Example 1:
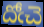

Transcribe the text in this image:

దోఁచె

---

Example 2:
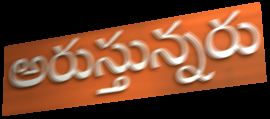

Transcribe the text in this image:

అరుస్తున్నరు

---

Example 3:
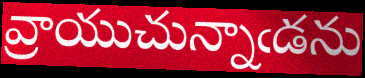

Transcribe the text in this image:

వ్రాయుచున్నాఁడను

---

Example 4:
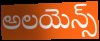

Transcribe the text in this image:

అలయెన్స్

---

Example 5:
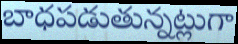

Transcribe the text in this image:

బాధపడుతున్నట్లుగా